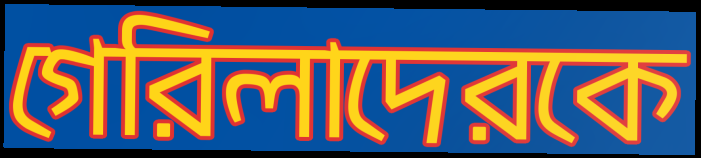
গেরিলাদেরকে